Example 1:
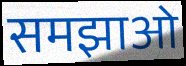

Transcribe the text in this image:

समझाओ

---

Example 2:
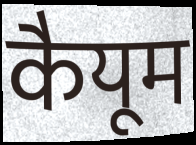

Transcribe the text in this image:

कैयूम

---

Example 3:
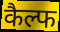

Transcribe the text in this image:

कैल्फ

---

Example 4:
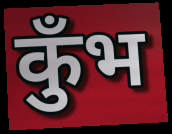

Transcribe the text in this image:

कुँभ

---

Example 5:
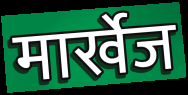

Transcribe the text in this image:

मार्खेज